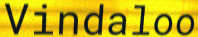
Vindaloo